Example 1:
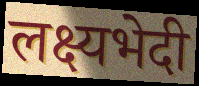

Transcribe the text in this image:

लक्ष्यभेदी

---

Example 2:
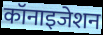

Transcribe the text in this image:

कॉनाइजेशन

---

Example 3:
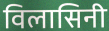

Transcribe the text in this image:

विलासिनी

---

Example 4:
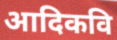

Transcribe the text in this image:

आदिकवि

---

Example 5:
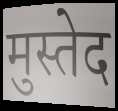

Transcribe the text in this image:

मुस्तेद